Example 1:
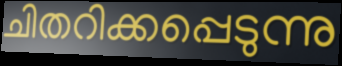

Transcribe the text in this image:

ചിതറിക്കപ്പെടുന്നു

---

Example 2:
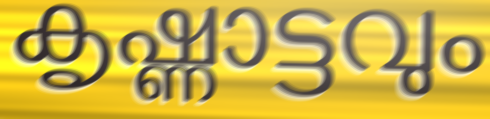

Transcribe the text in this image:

കൃഷ്ണാട്ടവും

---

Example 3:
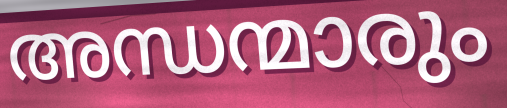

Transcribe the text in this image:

അന്ധന്മാരും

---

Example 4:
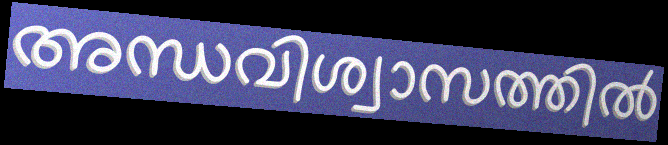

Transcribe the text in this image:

അന്ധവിശ്വാസത്തിൽ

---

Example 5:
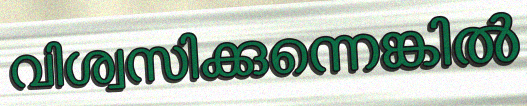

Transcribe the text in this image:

വിശ്വസിക്കുന്നെങ്കിൽ